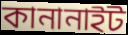
কানানাইট